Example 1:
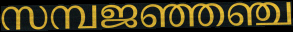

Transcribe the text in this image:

സമ്പജഞ്ഞഞ്ച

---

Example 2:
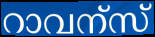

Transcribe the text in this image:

റാവന്സ്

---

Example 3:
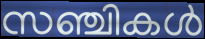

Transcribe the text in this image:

സഞ്ചികൾ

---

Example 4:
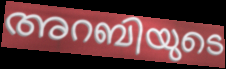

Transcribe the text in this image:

അറബിയുടെ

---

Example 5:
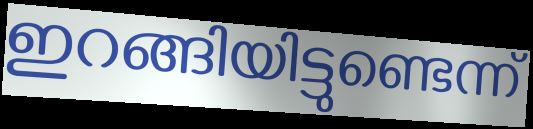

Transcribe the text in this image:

ഇറങ്ങിയിട്ടുണ്ടെന്ന്